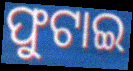
ଫୁଟାଇ